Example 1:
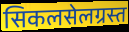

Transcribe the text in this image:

सिकलसेलग्रस्त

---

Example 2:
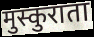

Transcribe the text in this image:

मुस्कुराता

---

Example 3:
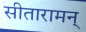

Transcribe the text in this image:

सीतारामन्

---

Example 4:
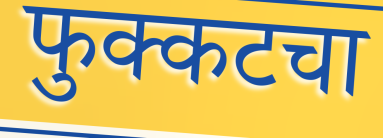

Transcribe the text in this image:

फुक्कटचा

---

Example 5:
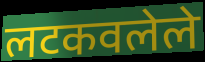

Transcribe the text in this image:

लटकवलेले